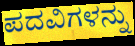
ಪದವಿಗಳನ್ನು